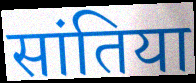
सांतिया